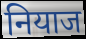
नियाज